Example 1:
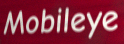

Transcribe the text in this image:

Mobileye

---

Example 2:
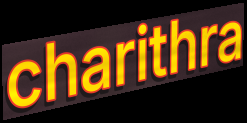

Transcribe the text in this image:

charithra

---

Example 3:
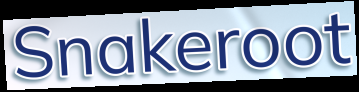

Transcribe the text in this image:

Snakeroot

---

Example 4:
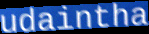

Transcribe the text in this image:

udaintha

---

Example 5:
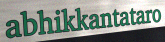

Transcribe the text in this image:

abhikkantataro